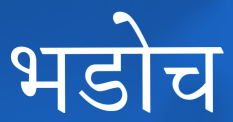
भडोच